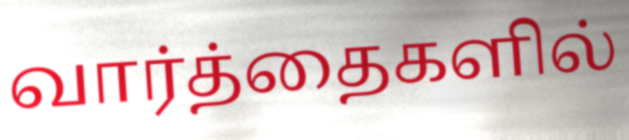
வார்த்தைகளில்